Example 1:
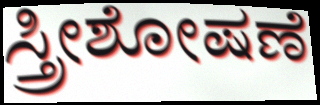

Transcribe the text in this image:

ಸ್ತ್ರೀಶೋಷಣೆ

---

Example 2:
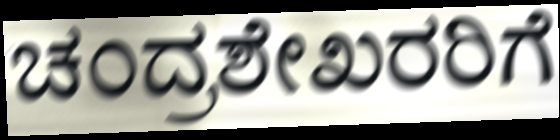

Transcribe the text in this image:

ಚಂದ್ರಶೇಖರರಿಗೆ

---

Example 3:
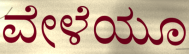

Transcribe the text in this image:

ವೇಳೆಯೂ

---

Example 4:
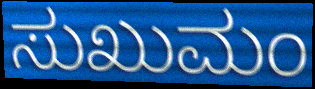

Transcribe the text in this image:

ಸುಖುಮಂ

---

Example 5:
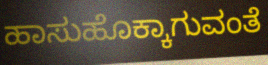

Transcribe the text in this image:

ಹಾಸುಹೊಕ್ಕಾಗುವಂತೆ